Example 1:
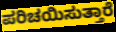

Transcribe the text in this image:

ಪರಿಚಯಿಸುತ್ತಾರೆ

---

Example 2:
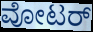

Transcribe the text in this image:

ವೋಟರ್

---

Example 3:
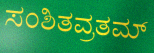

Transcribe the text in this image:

ಸಂಶಿತವ್ರತಮ್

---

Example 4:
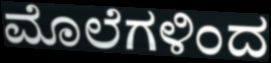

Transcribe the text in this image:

ಮೊಲೆಗಳಿಂದ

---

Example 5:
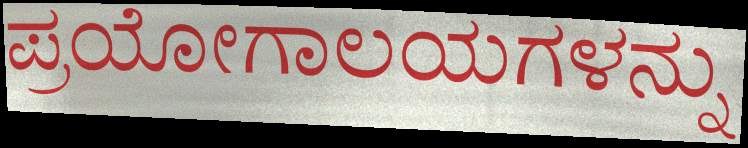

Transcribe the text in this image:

ಪ್ರಯೋಗಾಲಯಗಳನ್ನು